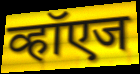
व्हॉएज